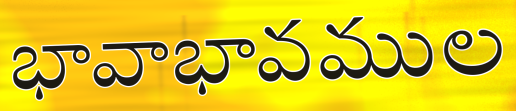
భావాభావముల